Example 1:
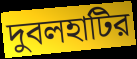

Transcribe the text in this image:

দুবলহাটির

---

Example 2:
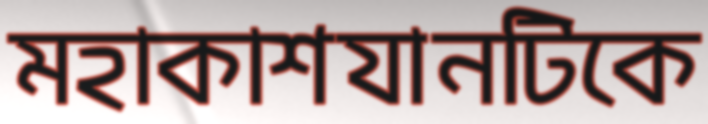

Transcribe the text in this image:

মহাকাশযানটিকে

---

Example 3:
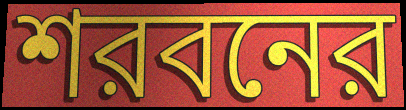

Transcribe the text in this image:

শরবনের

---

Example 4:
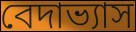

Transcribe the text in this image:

বেদাভ্যাস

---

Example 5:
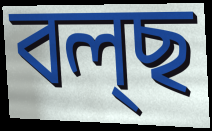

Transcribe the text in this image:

বল্‌ছ